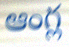
ఆంగ్ల